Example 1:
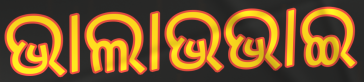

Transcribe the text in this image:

ଭାଲାଭଭାଇ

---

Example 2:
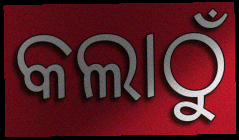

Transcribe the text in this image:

କଲାଠୁଁ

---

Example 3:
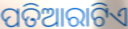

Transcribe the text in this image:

ପତିଆରାଟିଏ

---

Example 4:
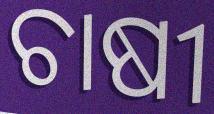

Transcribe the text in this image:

ଚାଷୀ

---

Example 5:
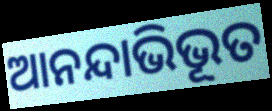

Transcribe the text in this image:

ଆନନ୍ଦାଭିଭୂତ